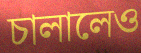
চালালেও